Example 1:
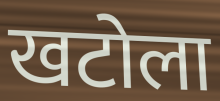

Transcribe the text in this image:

खटोला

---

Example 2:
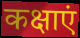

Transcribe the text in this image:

कक्षाएं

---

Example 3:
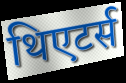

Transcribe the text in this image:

थिएटर्स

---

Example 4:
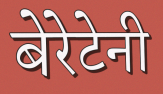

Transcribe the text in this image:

बेरेटेनी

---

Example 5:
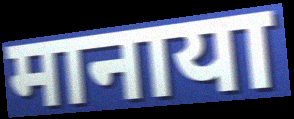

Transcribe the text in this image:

मानाया